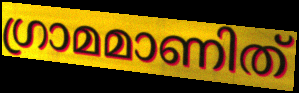
ഗ്രാമമാണിത്